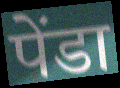
पेंडा